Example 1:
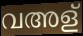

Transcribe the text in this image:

വഅള്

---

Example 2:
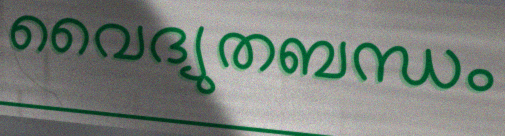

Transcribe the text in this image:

വൈദ്യുതബന്ധം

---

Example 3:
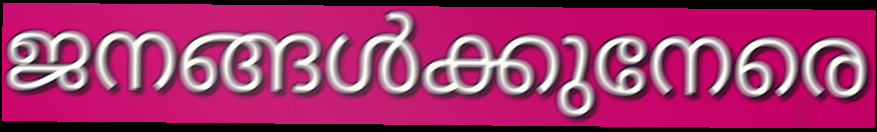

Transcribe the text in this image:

ജനങ്ങൾക്കുനേരെ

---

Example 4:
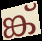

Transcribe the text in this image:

ങ്ക്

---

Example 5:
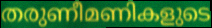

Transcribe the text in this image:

തരുണീമണികളുടെ